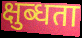
क्षुब्धता